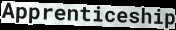
Apprenticeship